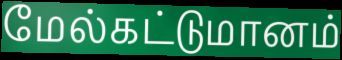
மேல்கட்டுமானம்